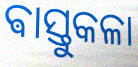
ଵାସ୍ତୁକଳା